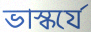
ভাস্কর্যে